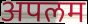
अपलम